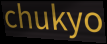
chukyo